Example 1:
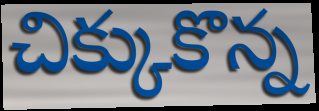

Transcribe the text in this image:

చిక్కుకొన్న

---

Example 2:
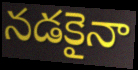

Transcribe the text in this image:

నడకైనా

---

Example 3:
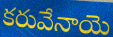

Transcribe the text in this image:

కరువేనాయె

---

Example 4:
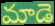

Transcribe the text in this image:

మాడె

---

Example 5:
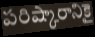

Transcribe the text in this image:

పరిష్కారానికై